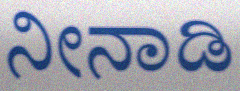
ನೀನಾಡಿ